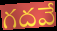
గదవే